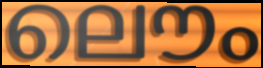
ലൌം